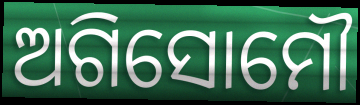
ଅଗିସୋମୌ